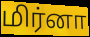
மிர்னா